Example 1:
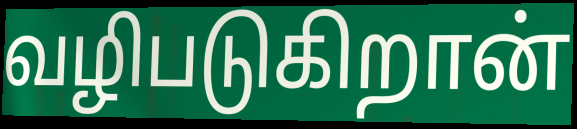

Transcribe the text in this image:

வழிபடுகிறான்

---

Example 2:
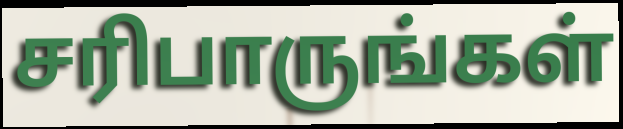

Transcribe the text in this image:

சரிபாருங்கள்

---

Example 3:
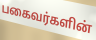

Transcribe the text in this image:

பகைவர்களின்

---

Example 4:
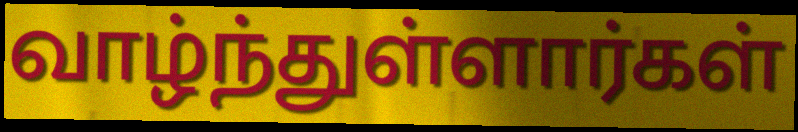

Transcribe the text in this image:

வாழ்ந்துள்ளார்கள்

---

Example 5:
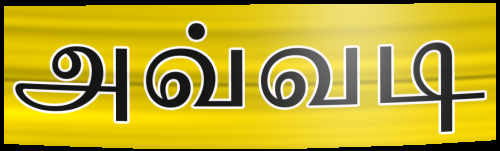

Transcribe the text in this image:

அவ்வடி